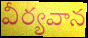
వీర్యవాన